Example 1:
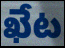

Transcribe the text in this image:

ఖేట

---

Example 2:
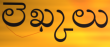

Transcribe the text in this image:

లెఖ్కలు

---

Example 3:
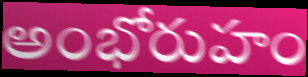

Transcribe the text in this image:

అంభోరుహం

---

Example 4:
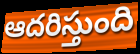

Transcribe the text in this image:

ఆదరిస్తుంది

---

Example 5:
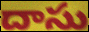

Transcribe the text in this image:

దాసు